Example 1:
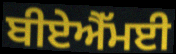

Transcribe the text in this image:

ਬੀਏਐੱਮਈ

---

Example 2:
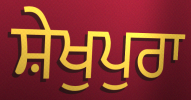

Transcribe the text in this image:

ਸ਼ੇਖੁਪੁਰਾ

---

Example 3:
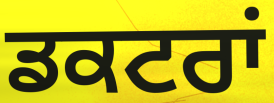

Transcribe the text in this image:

ਡਕਟਰਾਂ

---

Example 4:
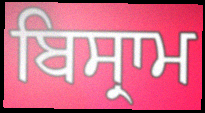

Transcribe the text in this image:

ਬਿਸ੍ਰਾਮ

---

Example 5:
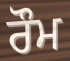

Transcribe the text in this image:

ਰੌਮ